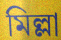
মিল্লা